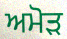
ਅਮੋੜ